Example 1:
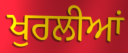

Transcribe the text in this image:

ਖੁਰਲੀਆਂ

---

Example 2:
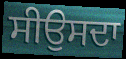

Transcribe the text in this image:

ਸੀਉਸਦਾ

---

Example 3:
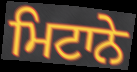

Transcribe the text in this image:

ਮਿਟਾਨੇ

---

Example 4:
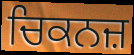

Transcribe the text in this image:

ਚਿਕਨਜ਼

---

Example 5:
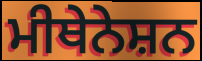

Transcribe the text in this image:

ਮੀਥੇਨੇਸ਼ਨ